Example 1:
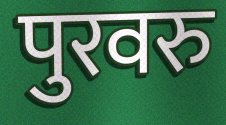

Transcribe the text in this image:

पुरवरु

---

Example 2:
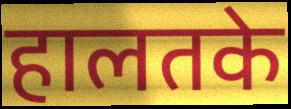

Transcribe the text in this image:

हालतके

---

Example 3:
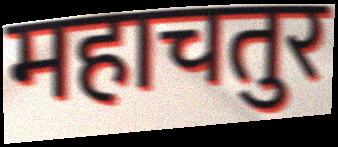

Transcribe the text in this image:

महाचतुर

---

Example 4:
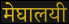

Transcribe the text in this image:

मेघालयी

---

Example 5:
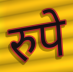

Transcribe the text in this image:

रुपे